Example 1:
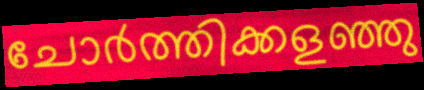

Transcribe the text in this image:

ചോർത്തിക്കളഞ്ഞു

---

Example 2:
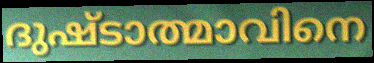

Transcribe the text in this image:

ദുഷ്ടാത്മാവിനെ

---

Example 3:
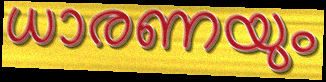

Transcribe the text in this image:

ധാരണയും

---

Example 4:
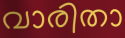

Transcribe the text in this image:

വാരിതാ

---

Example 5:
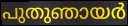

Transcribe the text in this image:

പുതുഞായർ